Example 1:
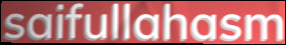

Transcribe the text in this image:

saifullahasm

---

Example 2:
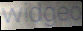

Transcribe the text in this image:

widgeo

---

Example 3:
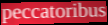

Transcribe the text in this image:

peccatoribus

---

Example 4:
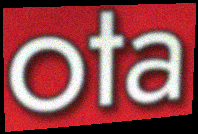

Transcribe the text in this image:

ota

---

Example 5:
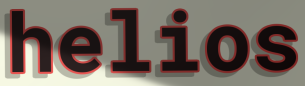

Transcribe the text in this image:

helios